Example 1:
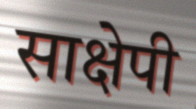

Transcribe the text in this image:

साक्षेपी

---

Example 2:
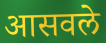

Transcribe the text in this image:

आसवले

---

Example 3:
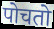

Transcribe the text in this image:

पोचतो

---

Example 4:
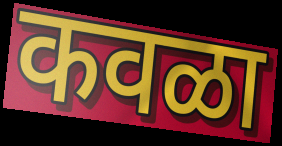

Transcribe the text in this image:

कवळा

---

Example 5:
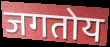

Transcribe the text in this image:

जगतोय